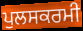
ਪੁਲਸਕਰਮੀ